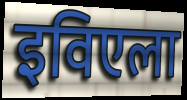
इविएला